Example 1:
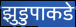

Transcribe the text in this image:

झुडुपाकडे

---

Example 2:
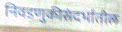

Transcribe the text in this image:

निवडणुकीसंदर्भातील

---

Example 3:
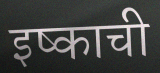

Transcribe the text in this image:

इष्काची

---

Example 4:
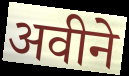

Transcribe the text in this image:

अवीने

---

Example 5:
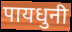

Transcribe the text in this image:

पायधुनी